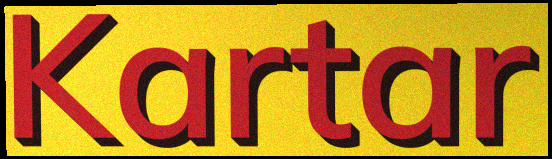
Kartar